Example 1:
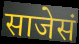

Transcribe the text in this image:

साजेसं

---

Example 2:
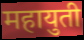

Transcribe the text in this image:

महायुती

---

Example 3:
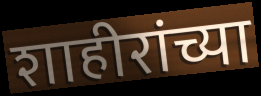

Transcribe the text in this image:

शाहीरांच्या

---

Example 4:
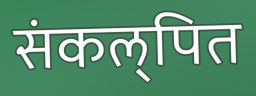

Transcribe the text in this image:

संकल्पित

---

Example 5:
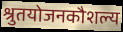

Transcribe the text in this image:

श्रुतयोजनकौशल्य